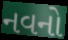
નવનો